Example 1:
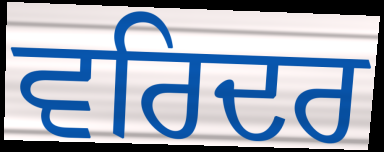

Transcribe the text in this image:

ਵਰਿਦਰ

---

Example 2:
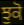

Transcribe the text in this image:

ਝੁਕੋ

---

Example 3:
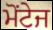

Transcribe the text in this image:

ਮੋਂਟੇਜ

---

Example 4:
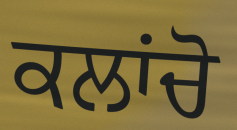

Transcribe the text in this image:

ਕਲਾਂਚੋ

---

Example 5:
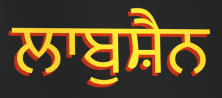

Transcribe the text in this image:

ਲਾਬੁਸ਼ੈਨ